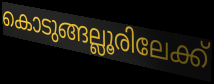
കൊടുങ്ങല്ലൂരിലേക്ക്